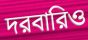
দরবারিও